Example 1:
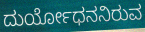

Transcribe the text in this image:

ದುರ್ಯೋಧನನಿರುವ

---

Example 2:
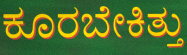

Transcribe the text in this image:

ಕೂರಬೇಕಿತ್ತು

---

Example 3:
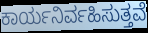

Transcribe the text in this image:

ಕಾರ್ಯನಿರ್ವಹಿಸುತ್ತವೆ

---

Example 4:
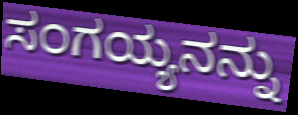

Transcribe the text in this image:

ಸಂಗಯ್ಯನನ್ನು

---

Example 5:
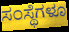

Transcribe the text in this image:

ಸಂಸ್ಥೆಗಳೂ